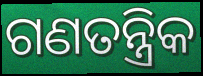
ଗଣତନ୍ତ୍ରିକ